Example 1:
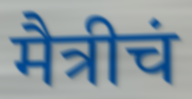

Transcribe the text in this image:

मैत्रीचं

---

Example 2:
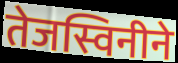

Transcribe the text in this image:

तेजस्विनीने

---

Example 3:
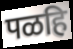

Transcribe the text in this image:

पळहि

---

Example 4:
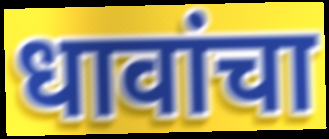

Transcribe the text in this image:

धावांचा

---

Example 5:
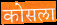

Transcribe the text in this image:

कोसला